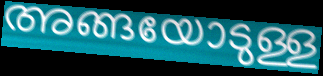
അങ്ങയോടുള്ള